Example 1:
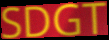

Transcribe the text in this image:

SDGT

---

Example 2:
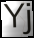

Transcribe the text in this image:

Yj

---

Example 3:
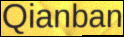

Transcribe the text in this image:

Qianban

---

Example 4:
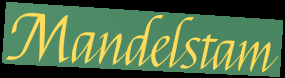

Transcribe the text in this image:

Mandelstam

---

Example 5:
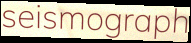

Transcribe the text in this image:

seismograph